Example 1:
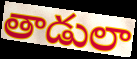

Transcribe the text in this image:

తాడులా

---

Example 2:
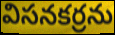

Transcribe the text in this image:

విసనకర్రను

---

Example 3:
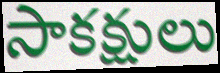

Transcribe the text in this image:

సాకక్షులు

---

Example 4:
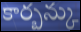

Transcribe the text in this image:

కార్బన్కు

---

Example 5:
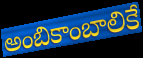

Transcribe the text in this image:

అంబికాంబాలికే